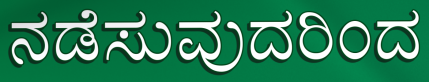
ನಡೆಸುವುದರಿಂದ